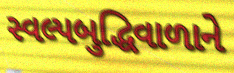
સ્વલ્પબુદ્ધિવાળાને